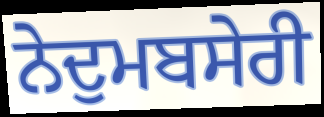
ਨੇਦੁਮਬਸੇਰੀ